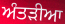
ਅੰਤੜੀਆ